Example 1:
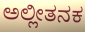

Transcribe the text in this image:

ಅಲ್ಲೀತನಕ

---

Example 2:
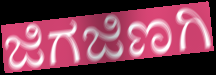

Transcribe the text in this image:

ಜಿಗಜಿಣಗಿ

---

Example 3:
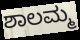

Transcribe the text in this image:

ಶಾಲಮ್ಮ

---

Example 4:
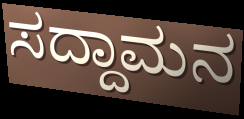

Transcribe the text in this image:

ಸದ್ದಾಮನ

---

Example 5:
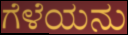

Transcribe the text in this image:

ಗೆಳೆಯನು